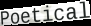
Poetical